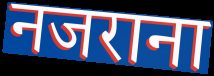
नजराना